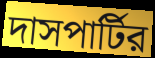
দাসপার্টির